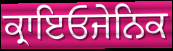
ਕ੍ਰਾਇਓਜੇਨਿਕ